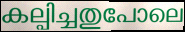
കല്പിച്ചതുപോലെ